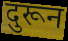
दुरून